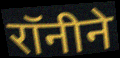
रॉनीने